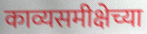
काव्यसमीक्षेच्या